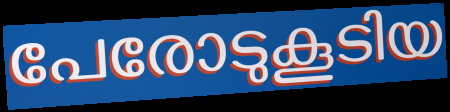
പേരോടുകൂടിയ